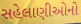
સહેલાણીઓનો